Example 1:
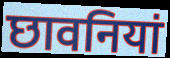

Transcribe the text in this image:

छावनियां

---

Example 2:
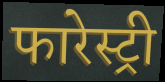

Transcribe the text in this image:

फारेस्ट्री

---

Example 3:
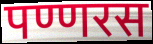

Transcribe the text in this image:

पण्णरस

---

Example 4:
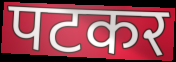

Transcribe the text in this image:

पटकर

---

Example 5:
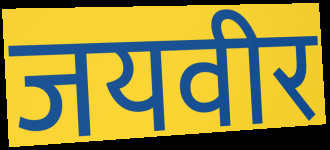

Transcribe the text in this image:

जयवीर